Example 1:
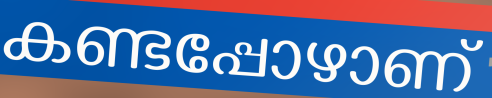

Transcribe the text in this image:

കണ്ടപ്പോഴാണ്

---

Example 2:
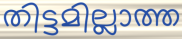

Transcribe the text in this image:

തിട്ടമില്ലാത്ത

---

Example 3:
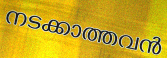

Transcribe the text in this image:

നടക്കാത്തവൻ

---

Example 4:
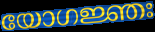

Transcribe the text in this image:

യോഗജ്ഞഃ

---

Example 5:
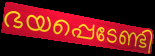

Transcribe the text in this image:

ഭയപ്പെടേണ്ടി